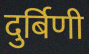
दुर्बिणी